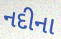
નદીના